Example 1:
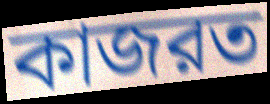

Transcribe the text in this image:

কাজরত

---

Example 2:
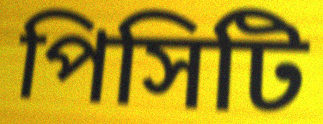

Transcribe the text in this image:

পিসিটি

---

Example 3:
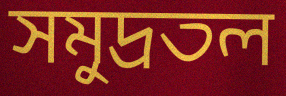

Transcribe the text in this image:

সমুদ্রতল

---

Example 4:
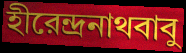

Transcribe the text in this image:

হীরেন্দ্রনাথবাবু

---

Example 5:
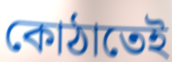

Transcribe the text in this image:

কোঠাতেই